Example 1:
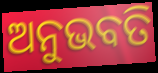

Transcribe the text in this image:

ଅନୁଭବତି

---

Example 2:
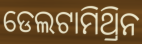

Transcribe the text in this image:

ଡେଲଟାମିଥ୍ରିନ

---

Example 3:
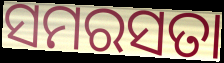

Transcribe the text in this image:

ସମରସତା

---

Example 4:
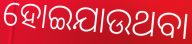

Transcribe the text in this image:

ହୋଇଯାଉଥବା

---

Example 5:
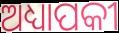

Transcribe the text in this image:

ଅଧ୍ୟାପକୀ